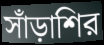
সাঁড়াশির